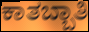
ಕಾತಬ್ಬಾತಿ